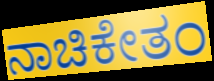
ನಾಚಿಕೇತಂ